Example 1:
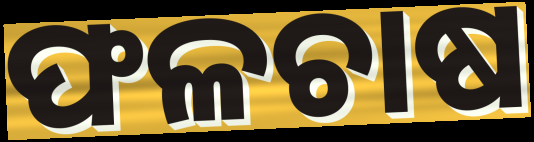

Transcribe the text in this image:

ଫଳଚାଷ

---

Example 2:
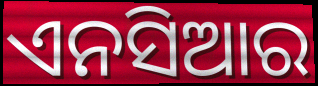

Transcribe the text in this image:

ଏନସିଆର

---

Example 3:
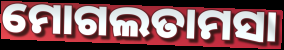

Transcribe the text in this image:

ମୋଗଲତାମସା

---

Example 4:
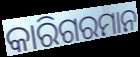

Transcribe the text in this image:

କାରିଗରମାନ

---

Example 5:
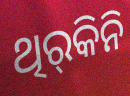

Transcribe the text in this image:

ଥିର୍‍କିନି